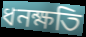
ধনক্ষতি